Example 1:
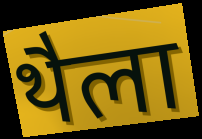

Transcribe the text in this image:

थैला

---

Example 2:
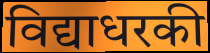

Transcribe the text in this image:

विद्याधरकी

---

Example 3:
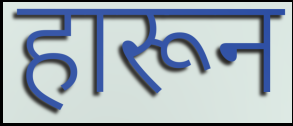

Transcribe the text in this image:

हारून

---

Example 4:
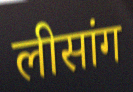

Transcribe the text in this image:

लीसांग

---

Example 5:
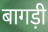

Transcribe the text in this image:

बागड़ी